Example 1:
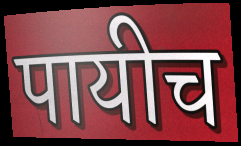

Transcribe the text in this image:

पायीच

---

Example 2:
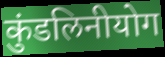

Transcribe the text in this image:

कुंडलिनीयोग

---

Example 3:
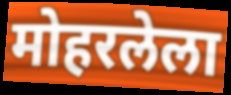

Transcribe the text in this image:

मोहरलेला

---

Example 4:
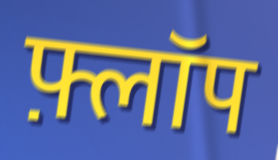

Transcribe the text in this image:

फ़्लॉप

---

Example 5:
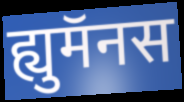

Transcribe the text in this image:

ह्युमॅनस